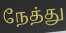
நேத்து